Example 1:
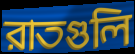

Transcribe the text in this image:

রাতগুলি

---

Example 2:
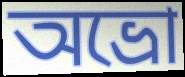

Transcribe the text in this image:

অভ্রো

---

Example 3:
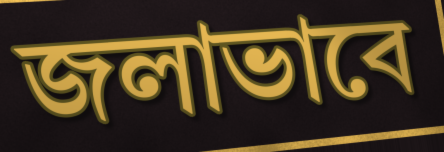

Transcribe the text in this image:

জলাভাবে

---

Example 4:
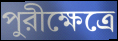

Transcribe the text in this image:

পুরীক্ষেত্রে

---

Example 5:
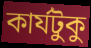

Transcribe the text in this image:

কার্যটুকু